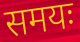
समयः